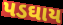
પડઘાય